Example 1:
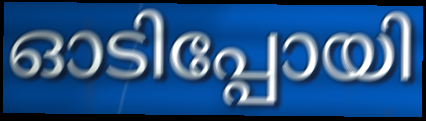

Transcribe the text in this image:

ഓടിപ്പോയി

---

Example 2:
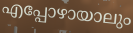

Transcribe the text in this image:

എപ്പോഴായാലും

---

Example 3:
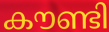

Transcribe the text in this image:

കൗണ്ടി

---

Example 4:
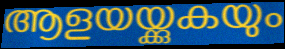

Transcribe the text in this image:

ആളയയ്ക്കുകയും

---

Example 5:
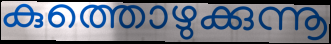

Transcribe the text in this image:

കുത്തൊഴുക്കുന്നൂ